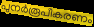
പുനർരൂപീകരണം